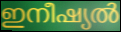
ഇനീഷ്യൽ